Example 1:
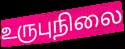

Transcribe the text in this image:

உருபுநிலை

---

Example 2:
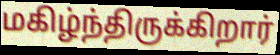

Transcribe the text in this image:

மகிழ்ந்திருக்கிறார்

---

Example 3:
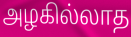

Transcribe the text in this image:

அழகில்லாத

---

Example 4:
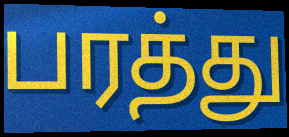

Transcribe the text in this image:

பரத்து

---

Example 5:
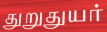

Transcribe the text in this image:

துறுதுயர்